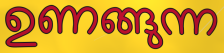
ഉണങ്ങുന്ന